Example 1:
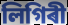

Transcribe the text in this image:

লিগিৰী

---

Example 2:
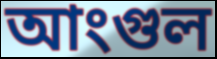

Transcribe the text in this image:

আংগুল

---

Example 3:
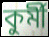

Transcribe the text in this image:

কুৰ্মী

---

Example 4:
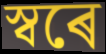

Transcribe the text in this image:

স্বৰে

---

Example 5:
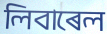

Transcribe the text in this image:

লিবাৰেল